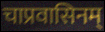
चाप्रवासिनम्